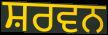
ਸ਼ਰਵਨ